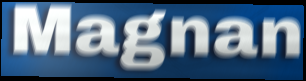
Magnan